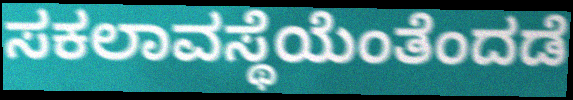
ಸಕಲಾವಸ್ಥೆಯೆಂತೆಂದಡೆ